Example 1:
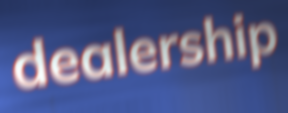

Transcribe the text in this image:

dealership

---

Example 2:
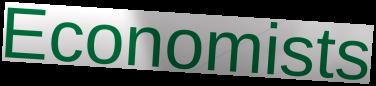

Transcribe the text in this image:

Economists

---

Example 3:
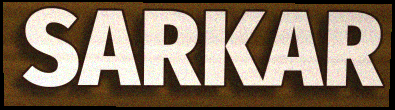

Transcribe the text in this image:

SARKAR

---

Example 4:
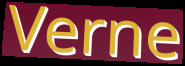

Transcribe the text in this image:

Verne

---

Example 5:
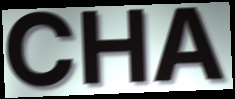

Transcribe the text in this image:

CHA